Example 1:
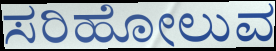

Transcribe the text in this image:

ಸರಿಹೋಲುವ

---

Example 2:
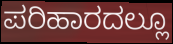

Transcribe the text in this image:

ಪರಿಹಾರದಲ್ಲೂ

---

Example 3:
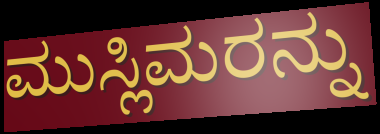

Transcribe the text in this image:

ಮುಸ್ಲಿಮರನ್ನು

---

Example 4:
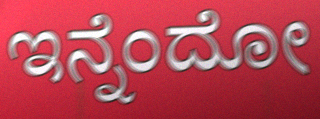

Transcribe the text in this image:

ಇನ್ನೆಂದೋ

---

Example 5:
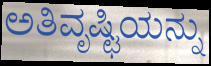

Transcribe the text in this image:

ಅತಿವೃಷ್ಟಿಯನ್ನು